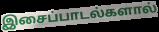
இசைப்பாடல்களால்